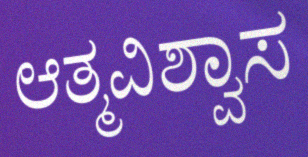
ಆತ್ಮವಿಶ್ವಾಸ